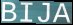
BIJA